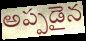
అప్పడైన